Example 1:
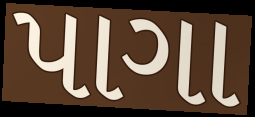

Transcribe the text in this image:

પાગા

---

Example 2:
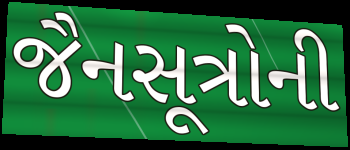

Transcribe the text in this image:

જૈનસૂત્રોની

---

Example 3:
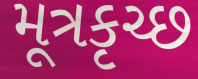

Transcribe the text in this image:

મૂત્રકૃચ્છ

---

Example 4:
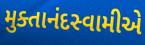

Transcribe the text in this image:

મુક્તાનંદસ્વામીએ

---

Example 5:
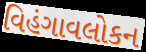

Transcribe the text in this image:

વિહંગાવલોકન